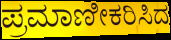
ಪ್ರಮಾಣೀಕರಿಸಿದ